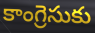
కాంగ్రెసుకు